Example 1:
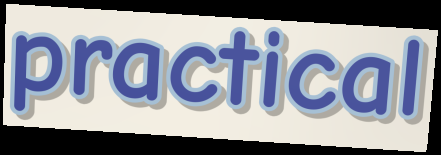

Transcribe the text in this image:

practical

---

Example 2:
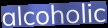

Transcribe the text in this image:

alcoholic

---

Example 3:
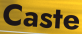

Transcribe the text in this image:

Caste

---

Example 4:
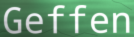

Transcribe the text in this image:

Geffen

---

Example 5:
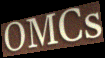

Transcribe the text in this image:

OMCs